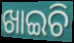
ଖାଇଚି